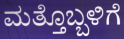
ಮತ್ತೊಬ್ಬಳಿಗೆ